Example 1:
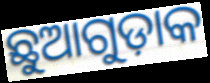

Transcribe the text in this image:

ଛୁଆଗୁଡ଼ାକ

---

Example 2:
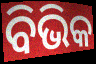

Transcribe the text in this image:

ବିଭିକ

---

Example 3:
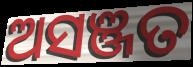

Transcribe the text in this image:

ଅସଞ୍ଜତ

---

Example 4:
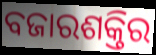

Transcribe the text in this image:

ବଜାରଶକ୍ତିର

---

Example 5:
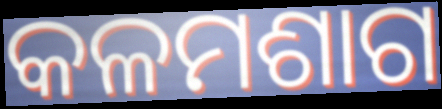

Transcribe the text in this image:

କଳମଶାଗ